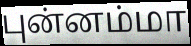
புன்னம்மா